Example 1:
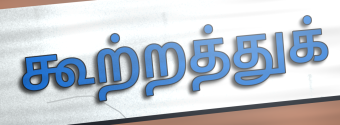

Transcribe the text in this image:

கூற்றத்துக்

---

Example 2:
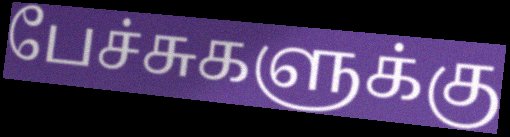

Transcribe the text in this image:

பேச்சுகளுக்கு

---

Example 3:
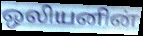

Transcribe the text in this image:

ஒலியனின்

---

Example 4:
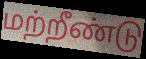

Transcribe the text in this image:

மற்றீண்டு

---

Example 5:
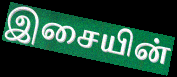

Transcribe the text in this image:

இசையின்